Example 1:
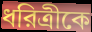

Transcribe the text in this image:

ধরিত্রীকে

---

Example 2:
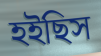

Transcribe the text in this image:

হইছিস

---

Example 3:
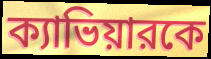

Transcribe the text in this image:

ক্যাভিয়ারকে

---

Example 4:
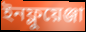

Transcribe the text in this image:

ইনফ্লুয়েঞ্জা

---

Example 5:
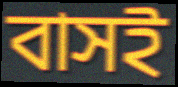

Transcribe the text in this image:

বাসই